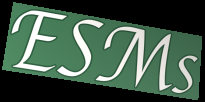
ESMs